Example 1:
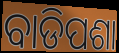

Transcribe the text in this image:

ବାଡିପଶା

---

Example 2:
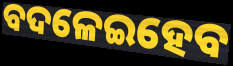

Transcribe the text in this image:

ବଦଳେଇହେବ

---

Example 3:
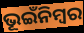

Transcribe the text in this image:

ଭୂଇଁନିମ୍ବର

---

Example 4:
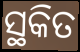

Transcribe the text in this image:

ସ୍ଥକିତ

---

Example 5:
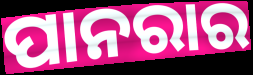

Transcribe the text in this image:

ପାନରାର